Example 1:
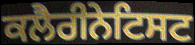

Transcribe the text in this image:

ਕਲੈਰੀਨੇਟਿਸਟ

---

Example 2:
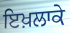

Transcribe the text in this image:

ਇਖ਼ਲਾਕੇ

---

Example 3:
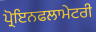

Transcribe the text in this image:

ਪ੍ਰੋਇਨਫਲਾਮੇਟਰੀ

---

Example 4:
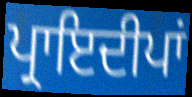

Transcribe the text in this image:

ਪ੍ਰਾਇਦੀਪਾਂ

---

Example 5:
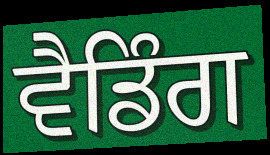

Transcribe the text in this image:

ਵੈਡਿੰਗ